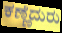
ಕಣ್ಣೆದುರು